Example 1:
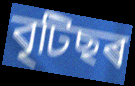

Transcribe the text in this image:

বৃটিছৰ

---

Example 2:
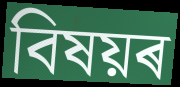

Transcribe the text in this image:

বিষয়ৰ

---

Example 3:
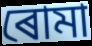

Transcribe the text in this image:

ৰোমা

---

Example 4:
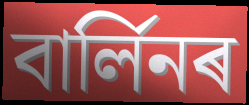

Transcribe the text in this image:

বাৰ্লিনৰ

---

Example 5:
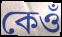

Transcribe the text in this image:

কেওঁ